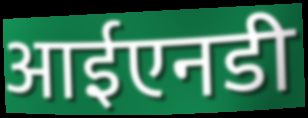
आईएनडी